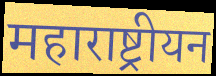
महाराष्ट्रीयन